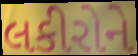
લકીરોને